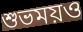
শুভময়ও